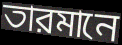
তারমানে